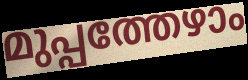
മുപ്പത്തേഴാം